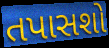
તપાસશો